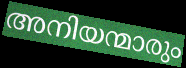
അനിയന്മാരും